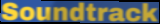
Soundtrack